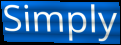
Simply